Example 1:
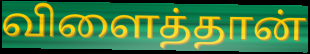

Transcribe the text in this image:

விளைத்தான்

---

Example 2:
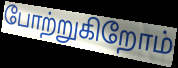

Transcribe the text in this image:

போற்றுகிறோம்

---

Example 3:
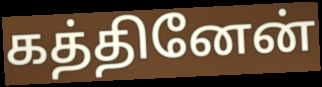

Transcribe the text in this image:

கத்தினேன்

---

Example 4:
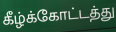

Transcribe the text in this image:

கீழ்க்கோட்டத்து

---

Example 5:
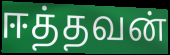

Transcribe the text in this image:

ஈத்தவன்